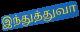
இந்துத்துவா